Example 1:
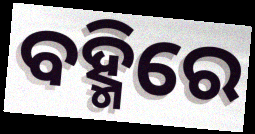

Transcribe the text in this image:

ବହ୍ମିରେ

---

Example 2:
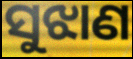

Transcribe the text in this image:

ସୁଝାଣ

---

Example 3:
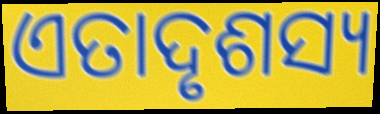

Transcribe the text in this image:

ଏତାଦୃଶସ୍ୟ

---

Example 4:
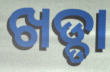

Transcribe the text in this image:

ଖଡ୍ଡା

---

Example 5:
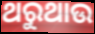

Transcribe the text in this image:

ଥରୁଥାଉ